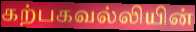
கற்பகவல்லியின்